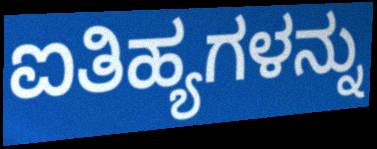
ಐತಿಹ್ಯಗಳನ್ನು